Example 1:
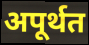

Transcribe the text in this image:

अपूर्थत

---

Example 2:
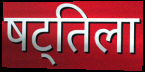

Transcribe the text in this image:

षट्तिला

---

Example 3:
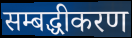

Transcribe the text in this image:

सम्बद्धीकरण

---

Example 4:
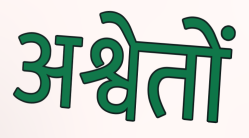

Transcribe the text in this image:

अश्वेतों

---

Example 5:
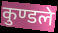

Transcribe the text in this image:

कुण्डले